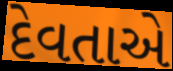
દેવતાએ